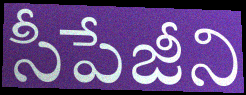
సీపేజీని